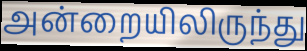
அன்றையிலிருந்து